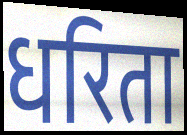
धरिता